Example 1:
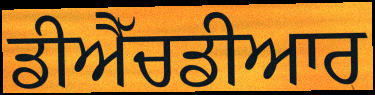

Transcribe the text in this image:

ਡੀਐੱਚਡੀਆਰ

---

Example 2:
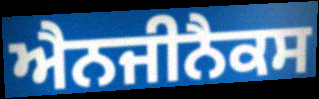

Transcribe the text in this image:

ਐਨਜੀਨੈਕਸ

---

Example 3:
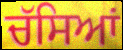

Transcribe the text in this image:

ਚੱਸਿਆਂ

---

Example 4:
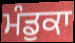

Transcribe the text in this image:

ਮੰਡੁਕਾ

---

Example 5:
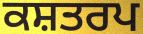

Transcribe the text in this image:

ਕਸ਼ਤਰਪ